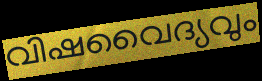
വിഷവൈദ്യവും